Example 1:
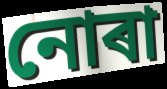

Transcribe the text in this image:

নোৰা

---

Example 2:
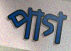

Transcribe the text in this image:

পাগ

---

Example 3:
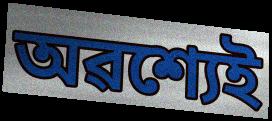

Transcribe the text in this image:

অৱশ্যেই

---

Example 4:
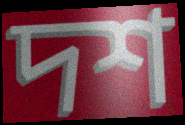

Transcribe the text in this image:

দশ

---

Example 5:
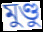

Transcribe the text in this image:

মুণ্ডু